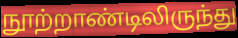
நூற்றாண்டிலிருந்து